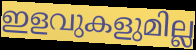
ഇളവുകളുമില്ല